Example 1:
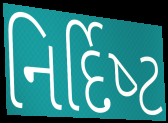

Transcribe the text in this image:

નિર્દિષ્‍ટ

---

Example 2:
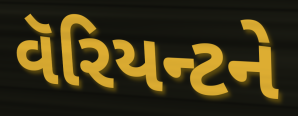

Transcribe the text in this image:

વૅરિયન્ટને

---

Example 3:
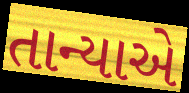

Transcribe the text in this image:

તાન્યાએ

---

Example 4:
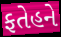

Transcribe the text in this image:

ફતેહને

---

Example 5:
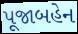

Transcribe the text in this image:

પૂજાબહેન